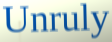
Unruly